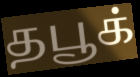
தபூக்